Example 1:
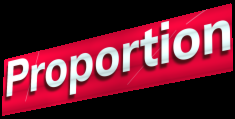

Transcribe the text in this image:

Proportion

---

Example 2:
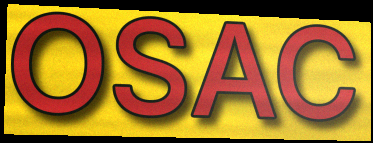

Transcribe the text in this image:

OSAC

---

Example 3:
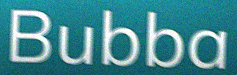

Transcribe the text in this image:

Bubba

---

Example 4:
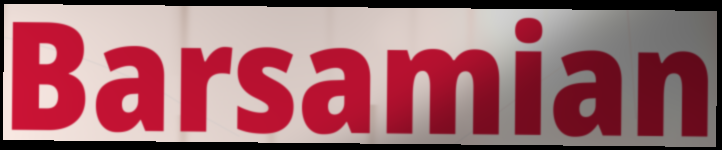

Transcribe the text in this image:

Barsamian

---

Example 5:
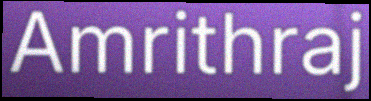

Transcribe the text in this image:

Amrithraj